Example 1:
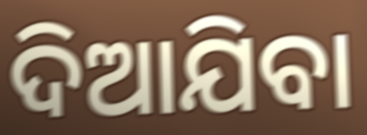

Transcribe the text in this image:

ଦିଆଯିବା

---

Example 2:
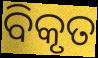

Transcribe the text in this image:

ବିକୃତ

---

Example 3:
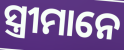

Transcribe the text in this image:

ସ୍ତ୍ରୀମାନେ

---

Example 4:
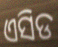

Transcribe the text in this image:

ଏସିଡ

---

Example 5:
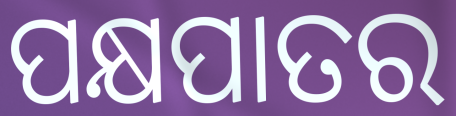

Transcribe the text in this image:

ପକ୍ଷପାତର